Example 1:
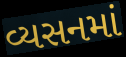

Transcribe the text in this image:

વ્યસનમાં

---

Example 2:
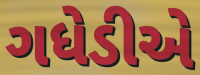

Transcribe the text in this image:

ગધેડીએ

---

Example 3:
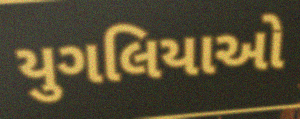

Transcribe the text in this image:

યુગલિયાઓ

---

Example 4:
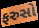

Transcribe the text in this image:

ફરુસો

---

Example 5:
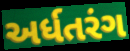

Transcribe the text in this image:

અર્ધતરંગ